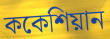
ককেশিয়ান